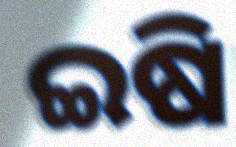
ଇଷି